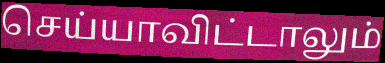
செய்யாவிட்டாலும்